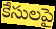
కేసులపై